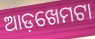
ଆଡ଼ଖେମଟା